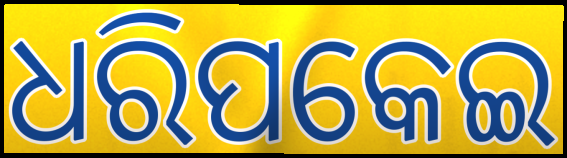
ଧରିପକେଇ